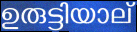
ഉരുട്ടിയാല്